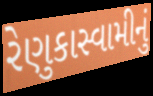
રેણુકાસ્વામીનું